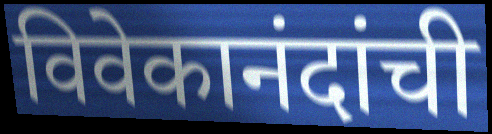
विवेकानंदांची